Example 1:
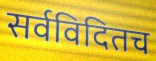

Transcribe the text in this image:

सर्वविदितच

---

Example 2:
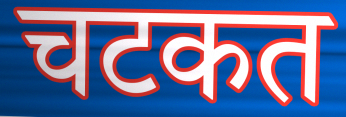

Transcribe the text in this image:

चटकत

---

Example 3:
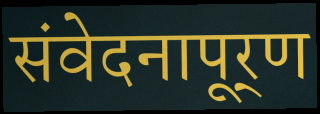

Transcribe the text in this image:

संवेदनापूर्ण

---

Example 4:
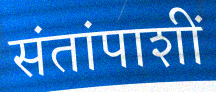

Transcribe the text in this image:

संतांपाशीं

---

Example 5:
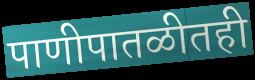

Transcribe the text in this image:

पाणीपातळीतही